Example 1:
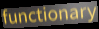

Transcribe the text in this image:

functionary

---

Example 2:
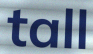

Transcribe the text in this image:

tall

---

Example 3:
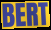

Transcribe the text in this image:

BERT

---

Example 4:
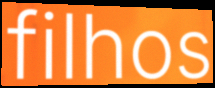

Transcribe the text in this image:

filhos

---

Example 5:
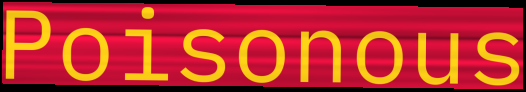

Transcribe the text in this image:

Poisonous